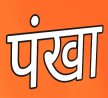
पंखा